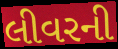
લીવરની